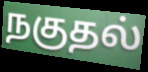
நகுதல்